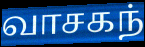
வாசகந்